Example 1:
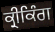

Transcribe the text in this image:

ਕ੍ਰੀਕਿੰਗ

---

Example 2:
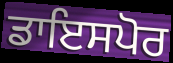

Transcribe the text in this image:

ਡਾਇਸਪੋਰ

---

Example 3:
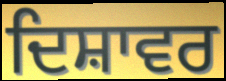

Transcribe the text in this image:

ਦਿਸ਼ਾਵਰ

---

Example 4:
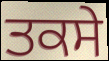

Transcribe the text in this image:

ਤਕਸੇ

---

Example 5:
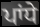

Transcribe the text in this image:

ਪਾਂਧੇ